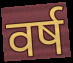
वर्ष